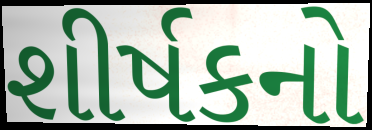
શીર્ષકનો